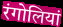
रंगोलियां